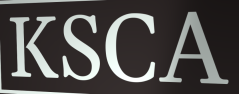
KSCA